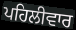
ਪਹਿਲੀਵਾਰ